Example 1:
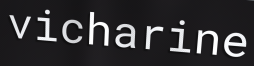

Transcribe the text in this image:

vicharine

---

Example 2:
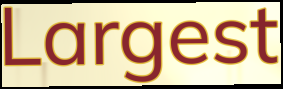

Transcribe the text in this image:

Largest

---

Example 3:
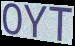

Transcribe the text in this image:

OYT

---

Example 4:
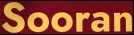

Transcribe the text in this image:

Sooran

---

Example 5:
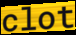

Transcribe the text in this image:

clot